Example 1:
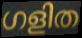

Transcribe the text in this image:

ഗളിത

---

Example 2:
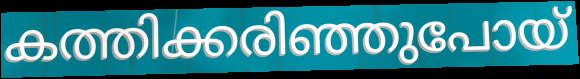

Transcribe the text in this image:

കത്തിക്കരിഞ്ഞുപോയ്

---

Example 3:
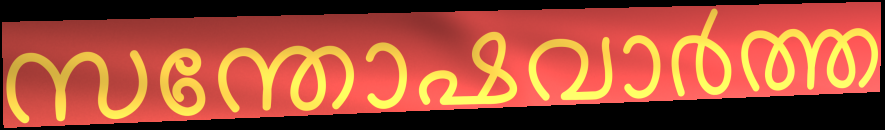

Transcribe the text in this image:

സന്തോഷവാർത്ത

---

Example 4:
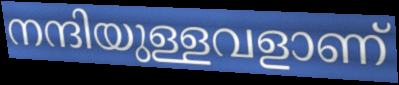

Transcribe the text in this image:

നന്ദിയുള്ളവളാണ്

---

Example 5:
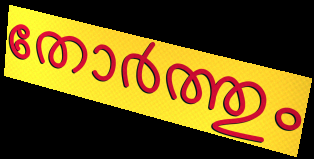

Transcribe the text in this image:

തോർത്തും